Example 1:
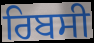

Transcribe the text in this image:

ਰਿਬਸੀ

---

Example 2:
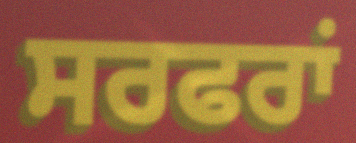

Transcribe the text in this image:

ਸਰਫਰਾਂ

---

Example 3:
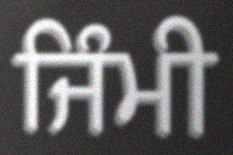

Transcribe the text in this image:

ਜਿੰਮੀ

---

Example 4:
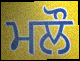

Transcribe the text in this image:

ਮਲੌ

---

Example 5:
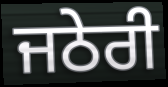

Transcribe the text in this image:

ਜਠੇਰੀ